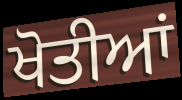
ਖੋਤੀਆਂ